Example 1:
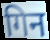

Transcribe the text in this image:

गिन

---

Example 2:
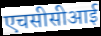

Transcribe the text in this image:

एचसीसीआई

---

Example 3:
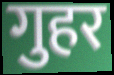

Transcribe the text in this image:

गुहर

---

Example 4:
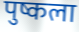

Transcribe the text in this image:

पुष्कला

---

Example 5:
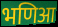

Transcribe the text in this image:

भणिआ